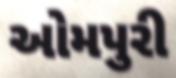
ઓમપુરી